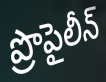
ప్రొపైలీన్